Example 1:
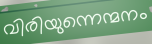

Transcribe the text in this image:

വിരിയുന്നെന്മനം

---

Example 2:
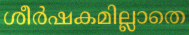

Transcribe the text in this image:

ശീർഷകമില്ലാതെ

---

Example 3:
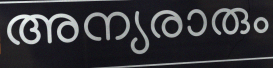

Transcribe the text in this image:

അന്യരാരും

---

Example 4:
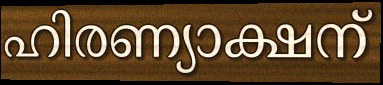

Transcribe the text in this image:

ഹിരണ്യാക്ഷന്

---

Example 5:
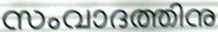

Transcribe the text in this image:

സംവാദത്തിനു